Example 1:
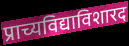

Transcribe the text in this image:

प्राच्यविद्याविशारद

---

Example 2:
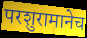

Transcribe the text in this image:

परशुरामानेच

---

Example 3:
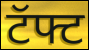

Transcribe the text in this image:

टॅफ्ट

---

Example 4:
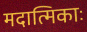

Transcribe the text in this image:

मदात्मिकाः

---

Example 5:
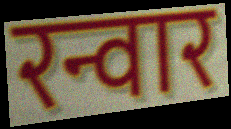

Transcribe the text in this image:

रन्वार